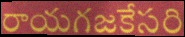
రాయగజకేసరి